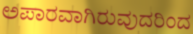
ಅಪಾರವಾಗಿರುವುದರಿಂದ